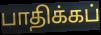
பாதிக்கப்